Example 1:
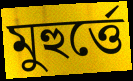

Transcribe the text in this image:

মুহুর্ত্তে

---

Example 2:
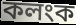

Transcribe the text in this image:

কলংক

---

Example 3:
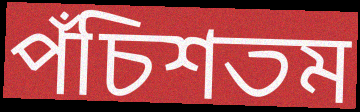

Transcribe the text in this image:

পঁচিশতম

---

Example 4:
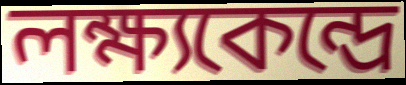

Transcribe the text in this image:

লক্ষ্যকেন্দ্রে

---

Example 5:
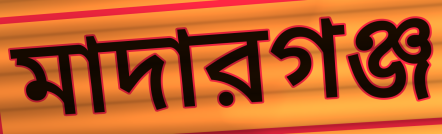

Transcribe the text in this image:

মাদারগঞ্জ